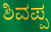
ಶಿವಪ್ಪ